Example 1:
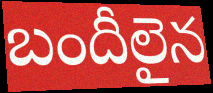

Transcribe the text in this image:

బందీలైన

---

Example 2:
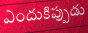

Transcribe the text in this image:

ఎందుకిప్పుడు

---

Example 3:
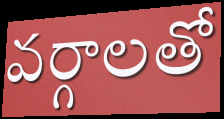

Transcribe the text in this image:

వర్గాలతో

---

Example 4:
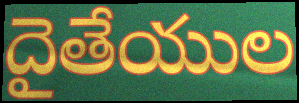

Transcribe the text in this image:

దైతేయుల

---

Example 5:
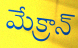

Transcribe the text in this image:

మేక్రాన్